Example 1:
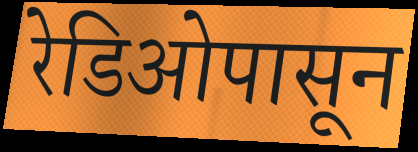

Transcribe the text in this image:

रेडिओपासून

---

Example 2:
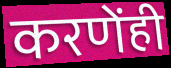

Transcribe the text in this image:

करणेंही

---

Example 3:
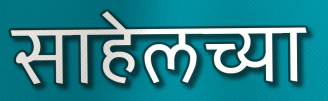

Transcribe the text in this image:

साहेलच्या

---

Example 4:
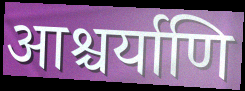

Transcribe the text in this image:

आश्चर्याणि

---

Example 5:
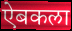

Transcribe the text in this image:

ऐबकला